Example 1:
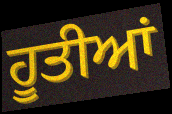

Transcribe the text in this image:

ਹੂਤੀਆਂ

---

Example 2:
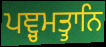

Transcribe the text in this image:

ਪਞ੍ਚਮਤ੍ਤਾਨਿ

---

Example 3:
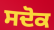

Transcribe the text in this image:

ਸਦੋਕ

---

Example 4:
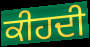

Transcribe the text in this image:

ਕੀਹਦੀ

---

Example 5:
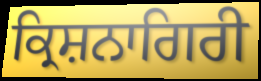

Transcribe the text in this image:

ਕ੍ਰਿਸ਼ਨਾਗਿਰੀ